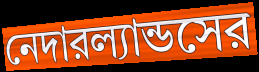
নেদারল্যান্ডসের